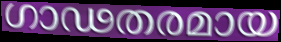
ഗാഢതരമായ